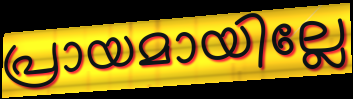
പ്രായമായില്ലേ